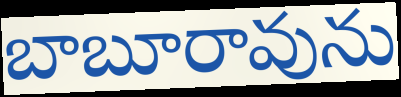
బాబూరావును